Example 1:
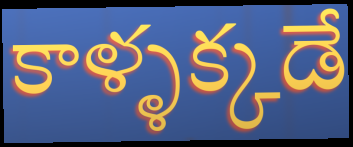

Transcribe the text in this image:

కాళ్ళక్కడే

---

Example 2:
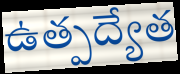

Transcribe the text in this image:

ఉత్పద్యేత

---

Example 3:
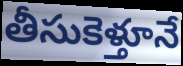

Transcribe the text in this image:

తీసుకెళ్తూనే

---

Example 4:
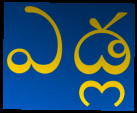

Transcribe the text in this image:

ఎడ్ల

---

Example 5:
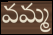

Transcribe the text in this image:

వమ్మ